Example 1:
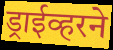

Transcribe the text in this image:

ड्राईव्हरने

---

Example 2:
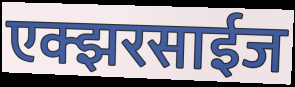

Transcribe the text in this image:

एक्झरसाईज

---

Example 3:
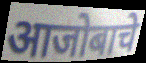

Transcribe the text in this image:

आजोबाचे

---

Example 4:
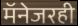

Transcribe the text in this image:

मॅनेजरही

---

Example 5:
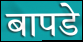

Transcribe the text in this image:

बापडे